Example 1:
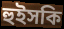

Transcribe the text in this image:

হুইসকি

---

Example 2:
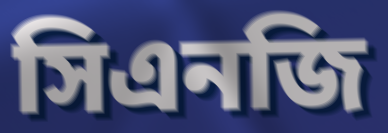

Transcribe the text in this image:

সিএনজি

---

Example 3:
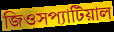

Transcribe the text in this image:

জিওসপ্যাটিয়াল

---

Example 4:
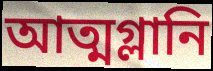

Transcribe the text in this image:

আত্মগ্লানি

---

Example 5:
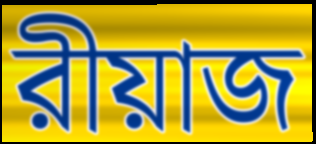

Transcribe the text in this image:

রীয়াজ